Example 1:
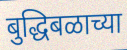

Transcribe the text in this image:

बुद्धिबळाच्या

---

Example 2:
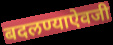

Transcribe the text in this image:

बदलण्याऐवजी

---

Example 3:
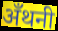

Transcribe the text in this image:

अँथनी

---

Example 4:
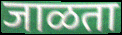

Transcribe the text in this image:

जाळता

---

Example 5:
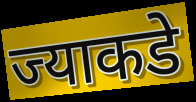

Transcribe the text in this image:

ज्याकडे